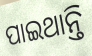
ପାଇଥାନ୍ତି